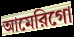
আমেরিগো